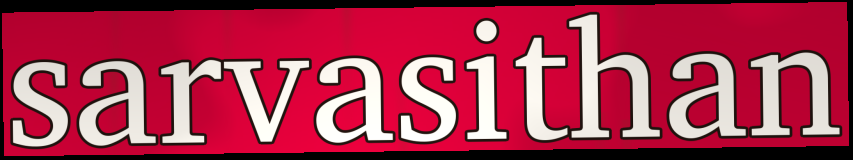
sarvasithan